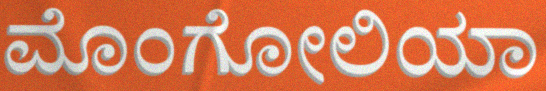
ಮೊಂಗೋಲಿಯಾ